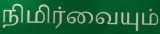
நிமிர்வையும்